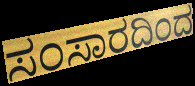
ಸಂಸಾರದಿಂದ